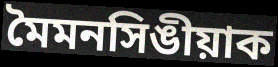
মৈমনসিঙীয়াক